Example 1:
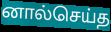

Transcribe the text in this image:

னால்செய்த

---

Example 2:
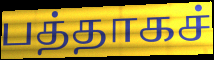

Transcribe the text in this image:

பத்தாகச்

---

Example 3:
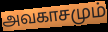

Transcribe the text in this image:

அவகாசமும்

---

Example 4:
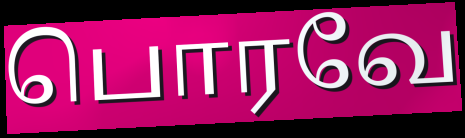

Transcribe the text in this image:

பொரவே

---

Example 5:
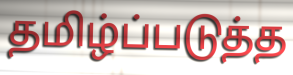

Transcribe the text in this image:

தமிழ்ப்படுத்த